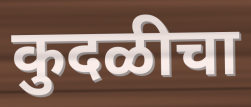
कुदळीचा